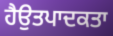
ਹੈਉਤਪਾਦਕਤਾ